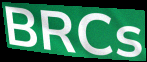
BRCs